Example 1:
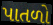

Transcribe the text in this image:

પાતળો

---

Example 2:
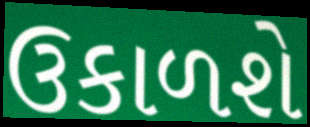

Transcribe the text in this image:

ઉકાળશે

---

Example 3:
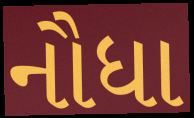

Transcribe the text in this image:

નૌધા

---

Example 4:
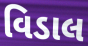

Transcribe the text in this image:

વિડાલ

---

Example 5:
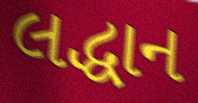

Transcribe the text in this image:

લદ્ધાન